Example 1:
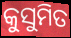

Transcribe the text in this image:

କୁସୁମିତ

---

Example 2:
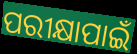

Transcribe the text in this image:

ପରୀକ୍ଷାପାଇଁ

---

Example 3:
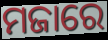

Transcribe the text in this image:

ମଜାରେ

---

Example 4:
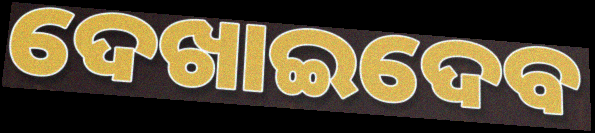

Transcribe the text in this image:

ଦେଖାଇଦେବ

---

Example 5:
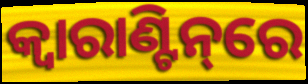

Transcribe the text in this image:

କ୍ବାରାଣ୍ଟିନ୍‌ରେ